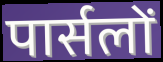
पार्सलों